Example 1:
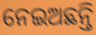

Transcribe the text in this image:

ନେଇଅଛନ୍ତି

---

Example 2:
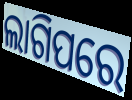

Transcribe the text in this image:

ଲାଗିପରେ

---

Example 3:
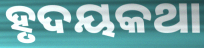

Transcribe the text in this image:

ହୃଦୟକଥା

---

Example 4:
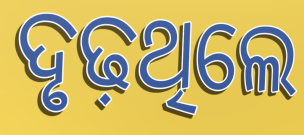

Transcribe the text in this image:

ଦୃଢ଼ଥିଲେ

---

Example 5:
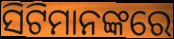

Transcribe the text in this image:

ସିଟିମାନଙ୍କରେ